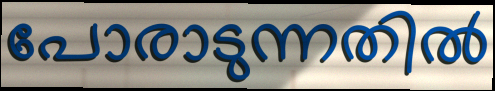
പോരാടുന്നതിൽ